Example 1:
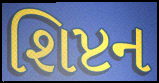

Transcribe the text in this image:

શિપ્ટન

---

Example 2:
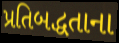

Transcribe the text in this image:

પ્રતિબદ્ધતાના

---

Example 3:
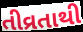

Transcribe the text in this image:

તીવ્રતાથી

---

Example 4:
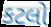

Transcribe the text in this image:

કટલો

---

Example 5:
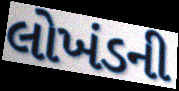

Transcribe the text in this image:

લોખંડની